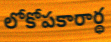
లోకోపకారార్థ